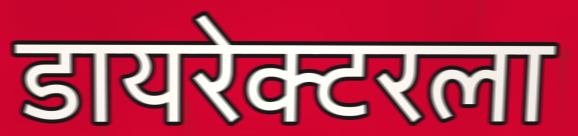
डायरेक्टरला